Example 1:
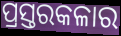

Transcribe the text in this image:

ପ୍ରସ୍ତରକଳାର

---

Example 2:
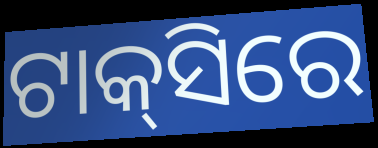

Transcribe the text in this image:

ଟାକ୍‌ସିରେ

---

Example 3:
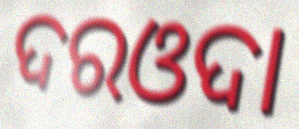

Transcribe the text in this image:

ଦରଓଦା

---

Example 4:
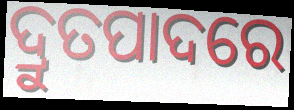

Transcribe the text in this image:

ଦ୍ରୁତପାଦରେ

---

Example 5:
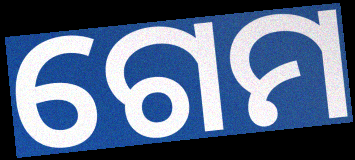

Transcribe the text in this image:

ଗେମ